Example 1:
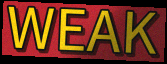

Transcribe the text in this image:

WEAK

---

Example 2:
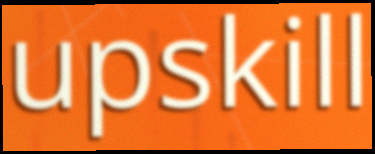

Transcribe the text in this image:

upskill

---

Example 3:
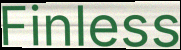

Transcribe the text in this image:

Finless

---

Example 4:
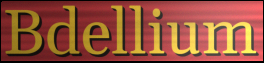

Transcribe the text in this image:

Bdellium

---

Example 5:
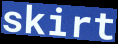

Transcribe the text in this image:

skirt